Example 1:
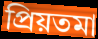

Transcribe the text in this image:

প্রিয়তমা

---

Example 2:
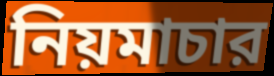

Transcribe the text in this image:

নিয়মাচার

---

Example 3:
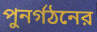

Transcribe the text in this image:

পুনর্গঠনের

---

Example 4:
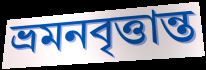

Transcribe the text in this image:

ভ্রমনবৃত্তান্ত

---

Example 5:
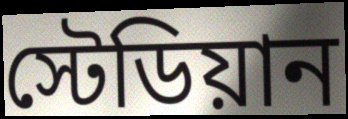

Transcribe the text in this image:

স্টেডিয়ান